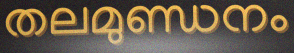
തലമുണ്ഡനം